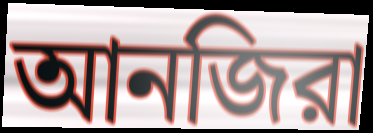
আনজিরা